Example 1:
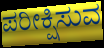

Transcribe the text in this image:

ಪರೀಕ್ಷಿಸುವ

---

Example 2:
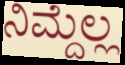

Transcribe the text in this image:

ನಿಮ್ದೆಲ್ಲ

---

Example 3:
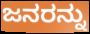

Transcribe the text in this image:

ಜನರನ್ನು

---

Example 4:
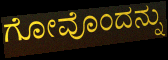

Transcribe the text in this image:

ಗೋವೊಂದನ್ನು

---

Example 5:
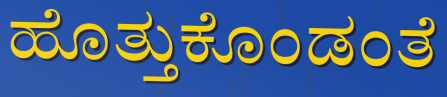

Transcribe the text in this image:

ಹೊತ್ತುಕೊಂಡಂತೆ